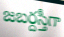
జబర్దస్తీగా